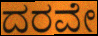
ದರವೇ